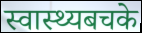
स्वास्थ्यबचके